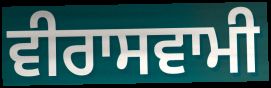
ਵੀਰਾਸਵਾਮੀ